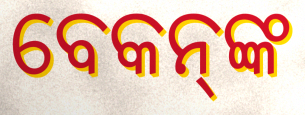
ବେକନ୍‌ଙ୍କ